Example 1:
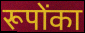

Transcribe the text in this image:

रूपोंका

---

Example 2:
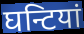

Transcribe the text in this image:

घन्टियां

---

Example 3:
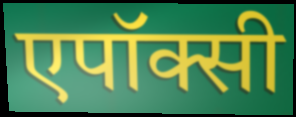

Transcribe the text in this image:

एपॉक्सी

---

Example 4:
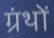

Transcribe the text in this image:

ग्रंथों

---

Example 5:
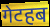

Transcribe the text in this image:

गेटहब